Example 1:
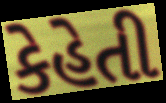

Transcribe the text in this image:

કેહેતી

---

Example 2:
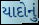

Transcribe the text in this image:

યાદોનું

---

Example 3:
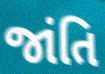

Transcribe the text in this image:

જાંતિ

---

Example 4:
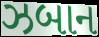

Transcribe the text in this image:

ઝબાન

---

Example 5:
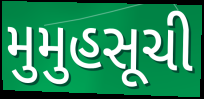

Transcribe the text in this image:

મુમુહસૂચી